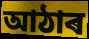
আঠাৰ